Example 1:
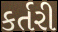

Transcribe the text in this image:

કર્તરી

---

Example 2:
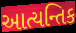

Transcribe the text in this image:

આત્યન્તિક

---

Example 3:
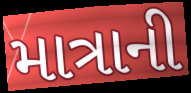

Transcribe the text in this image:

માત્રાની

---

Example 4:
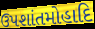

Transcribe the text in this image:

ઉપશાંતમોહાદિ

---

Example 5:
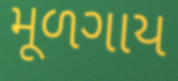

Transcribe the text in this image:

મૂળગાય